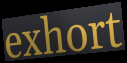
exhort